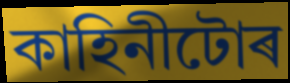
কাহিনীটোৰ